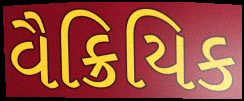
વૈક્રિયિક